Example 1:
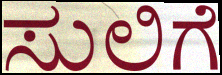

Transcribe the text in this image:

ಸುಲಿಗೆ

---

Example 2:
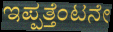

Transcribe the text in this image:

ಇಪ್ಪತ್ತೆಂಟನೇ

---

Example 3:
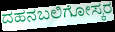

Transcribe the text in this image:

ದಹನಬಲಿಗೋಸ್ಕರ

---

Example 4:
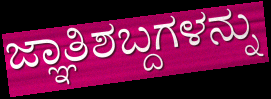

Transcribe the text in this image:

ಜ್ಞಾತಿಶಬ್ದಗಳನ್ನು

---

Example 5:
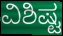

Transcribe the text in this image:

ವಿಶಿಷ್ಟ